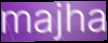
majha